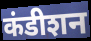
कंडीशन